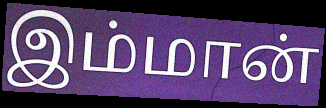
இம்மான்